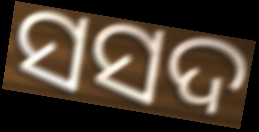
ସସଦ